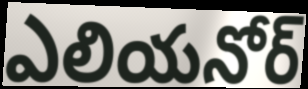
ఎలియనోర్